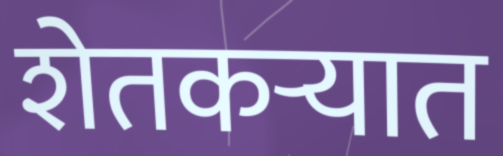
शेतकऱ्यात